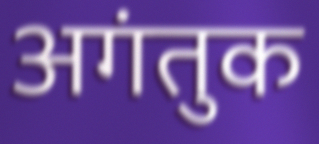
अगंतुक